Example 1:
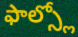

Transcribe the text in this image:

ఫాల్స్లో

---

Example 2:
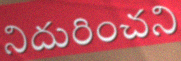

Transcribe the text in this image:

నిదురించని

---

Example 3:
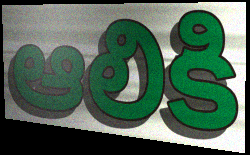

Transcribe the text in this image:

ఆలికి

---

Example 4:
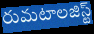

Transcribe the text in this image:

రుమటాలజిస్ట్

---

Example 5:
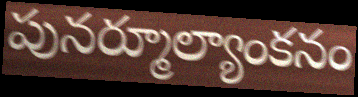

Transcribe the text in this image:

పునర్మూల్యాంకనం